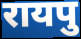
रायपु